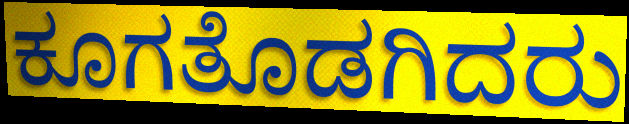
ಕೂಗತೊಡಗಿದರು